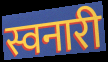
स्वनारी